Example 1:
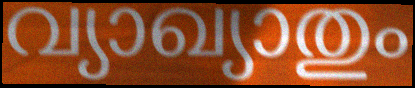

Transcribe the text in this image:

വ്യാഖ്യാതും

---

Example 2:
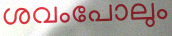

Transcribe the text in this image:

ശവംപോലും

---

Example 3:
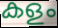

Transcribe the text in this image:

കളം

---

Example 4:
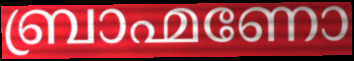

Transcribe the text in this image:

ബ്രാഹ്മണോ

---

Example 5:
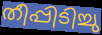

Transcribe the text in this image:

തീപ്പിടിച്ചു